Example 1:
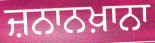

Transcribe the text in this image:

ਜ਼ਨਾਨਖ਼ਾਨਾ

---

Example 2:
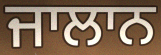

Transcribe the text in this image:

ਜਾਲਾਨ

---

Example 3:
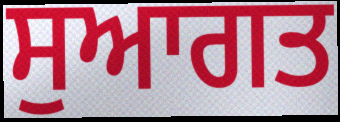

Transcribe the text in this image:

ਸੁਆਗਤ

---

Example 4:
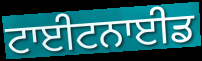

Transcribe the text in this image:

ਟਾਈਟਨਾਈਡ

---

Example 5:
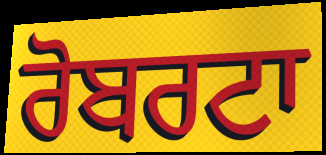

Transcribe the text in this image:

ਰੋਬਰਟਾ